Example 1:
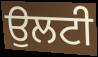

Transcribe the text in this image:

ਉਲਟੀ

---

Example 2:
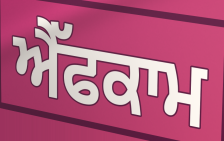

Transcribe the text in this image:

ਐੱਫਕਾਮ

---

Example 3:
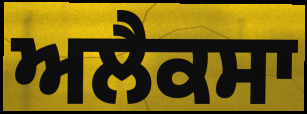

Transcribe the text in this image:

ਅਲੈਕਸਾ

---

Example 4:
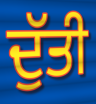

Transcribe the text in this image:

ਦੁੱਤੀ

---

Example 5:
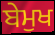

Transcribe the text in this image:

ਬੇਮੁਖ